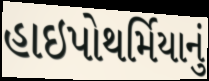
હાઇપોથર્મિયાનું